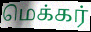
மெக்கர்